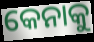
କେନାକୁ